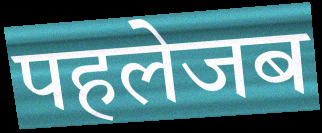
पहलेजब